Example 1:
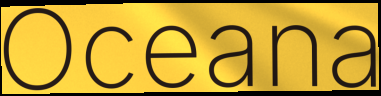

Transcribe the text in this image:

Oceana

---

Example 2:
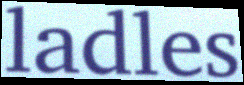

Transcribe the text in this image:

ladles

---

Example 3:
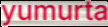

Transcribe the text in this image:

yumurta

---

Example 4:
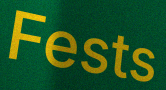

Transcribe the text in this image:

Fests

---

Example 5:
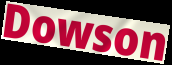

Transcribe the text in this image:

Dowson